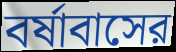
বর্ষাবাসের